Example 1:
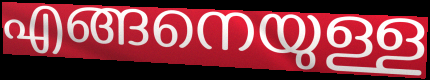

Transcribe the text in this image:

എങ്ങനെയുള്ള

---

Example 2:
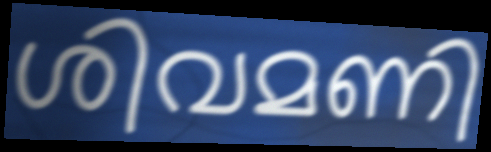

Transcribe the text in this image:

ശിവമണി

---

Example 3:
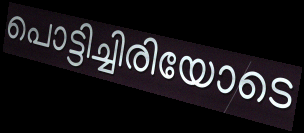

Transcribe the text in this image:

പൊട്ടിച്ചിരിയോടെ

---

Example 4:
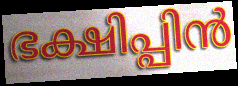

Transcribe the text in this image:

ഭക്ഷിപ്പിൻ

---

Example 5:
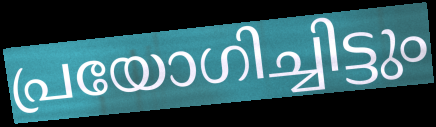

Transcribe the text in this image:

പ്രയോഗിച്ചിട്ടും